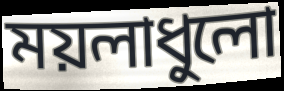
ময়লাধুলো